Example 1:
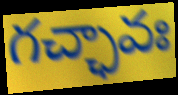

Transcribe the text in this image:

గచ్ఛావః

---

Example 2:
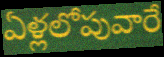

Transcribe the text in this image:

ఏళ్లలోపువారే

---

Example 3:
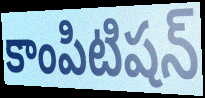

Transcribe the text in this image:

కాంపిటిషన్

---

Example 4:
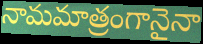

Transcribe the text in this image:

నామమాత్రంగానైనా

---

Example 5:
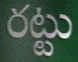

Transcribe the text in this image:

రట్టు